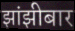
झांझीबार